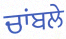
ਚਾਂਬਲੇ